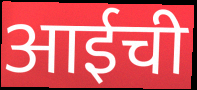
आईची